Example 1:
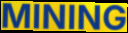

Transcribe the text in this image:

MINING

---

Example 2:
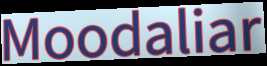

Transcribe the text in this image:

Moodaliar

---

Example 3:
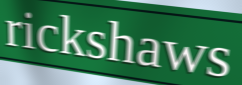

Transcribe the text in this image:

rickshaws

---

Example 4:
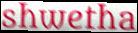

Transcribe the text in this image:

shwetha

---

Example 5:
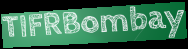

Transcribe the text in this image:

TIFRBombay